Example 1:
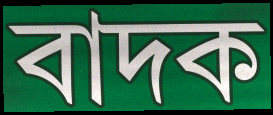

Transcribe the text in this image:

বাদক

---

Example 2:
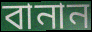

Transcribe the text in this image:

বানান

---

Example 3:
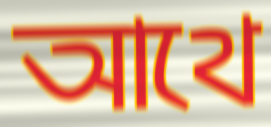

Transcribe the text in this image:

আথে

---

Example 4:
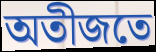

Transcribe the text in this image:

অতীজতে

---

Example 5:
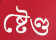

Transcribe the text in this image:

ষ্টেণ্ড